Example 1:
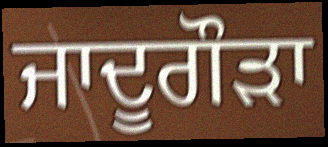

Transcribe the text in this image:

ਜਾਦੂਗੌੜਾ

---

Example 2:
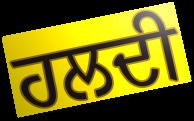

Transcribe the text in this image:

ਹਲਦੀ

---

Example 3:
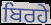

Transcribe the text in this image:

ਬਿਰਹੇ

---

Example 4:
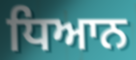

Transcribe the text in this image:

ਧਿਆਨ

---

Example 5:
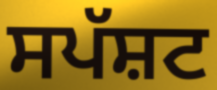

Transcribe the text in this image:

ਸਪੱਸ਼ਟ